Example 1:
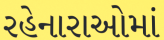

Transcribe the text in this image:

રહેનારાઓમાં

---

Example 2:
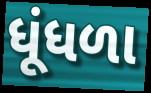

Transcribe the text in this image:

ધૂંધળા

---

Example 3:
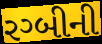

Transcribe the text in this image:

રગ્બીની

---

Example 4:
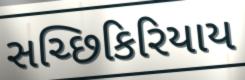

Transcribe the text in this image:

સચ્છિકિરિયાય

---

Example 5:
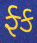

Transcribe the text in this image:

ફ્ક